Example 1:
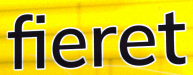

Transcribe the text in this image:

fieret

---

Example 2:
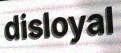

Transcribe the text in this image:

disloyal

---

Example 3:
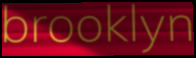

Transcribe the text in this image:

brooklyn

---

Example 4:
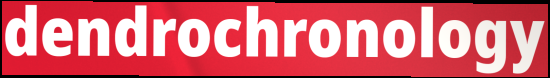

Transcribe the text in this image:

dendrochronology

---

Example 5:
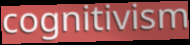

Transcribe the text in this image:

cognitivism